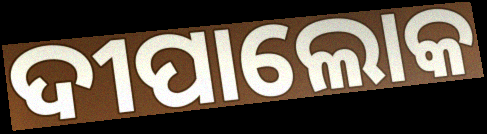
ଦୀପାଲୋକ